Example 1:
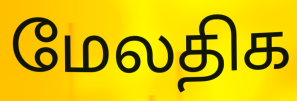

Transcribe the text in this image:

மேலதிக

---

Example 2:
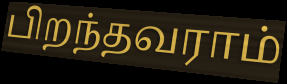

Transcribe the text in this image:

பிறந்தவராம்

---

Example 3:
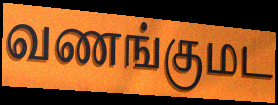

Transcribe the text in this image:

வணங்குமட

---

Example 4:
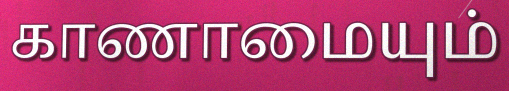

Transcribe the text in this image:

காணாமையும்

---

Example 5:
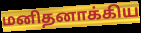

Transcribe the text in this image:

மனிதனாக்கிய